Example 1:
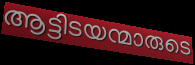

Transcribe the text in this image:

ആട്ടിടയന്മാരുടെ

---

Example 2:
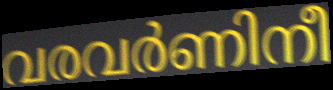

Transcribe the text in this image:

വരവർണിനീ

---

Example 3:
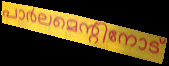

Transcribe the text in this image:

പാർലമെന്റിനോട്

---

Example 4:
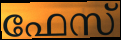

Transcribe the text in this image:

ഫേസ്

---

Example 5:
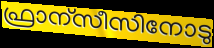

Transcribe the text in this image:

ഫ്രാന്സീസിനോടു